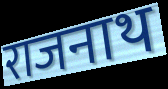
राजनाथ